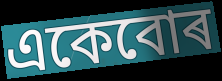
একেবোৰ